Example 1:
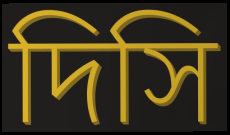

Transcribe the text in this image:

দিসি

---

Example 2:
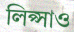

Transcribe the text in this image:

লিপ্সাও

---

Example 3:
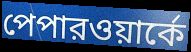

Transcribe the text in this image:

পেপারওয়ার্কে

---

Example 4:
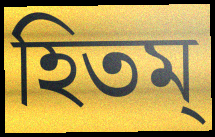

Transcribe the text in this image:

হিতম্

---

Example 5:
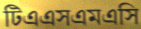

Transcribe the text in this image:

টিএএসএমএসি